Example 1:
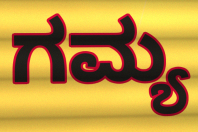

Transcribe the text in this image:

ಗಮ್ಯ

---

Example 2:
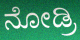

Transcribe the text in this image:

ನೋಡ್ರಿ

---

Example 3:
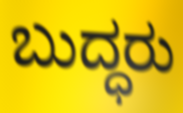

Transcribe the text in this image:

ಬುದ್ಧರು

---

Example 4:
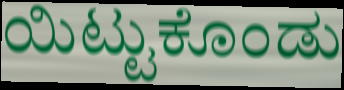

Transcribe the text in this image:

ಯಿಟ್ಟುಕೊಂಡು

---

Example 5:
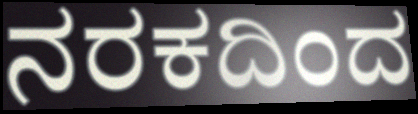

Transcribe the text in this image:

ನರಕದಿಂದ